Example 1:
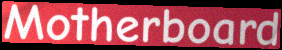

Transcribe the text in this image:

Motherboard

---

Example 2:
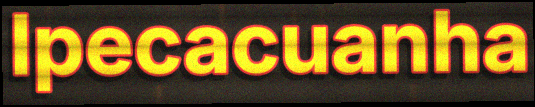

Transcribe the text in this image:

Ipecacuanha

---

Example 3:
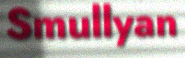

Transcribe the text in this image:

Smullyan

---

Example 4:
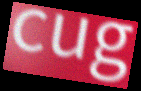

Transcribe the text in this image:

cug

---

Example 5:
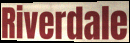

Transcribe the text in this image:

Riverdale